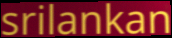
srilankan